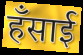
हँसाई